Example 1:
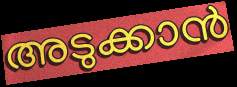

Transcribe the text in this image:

അടുക്കാൻ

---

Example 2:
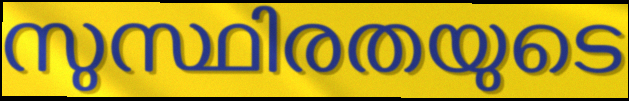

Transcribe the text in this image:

സുസ്ഥിരതയുടെ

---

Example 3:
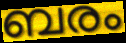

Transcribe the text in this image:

ബരം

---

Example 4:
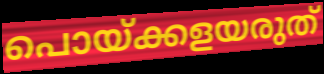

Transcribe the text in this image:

പൊയ്ക്കളയരുത്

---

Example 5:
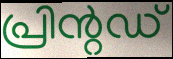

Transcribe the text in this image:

പ്രിന്റഡ്